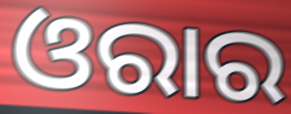
ଓରାର